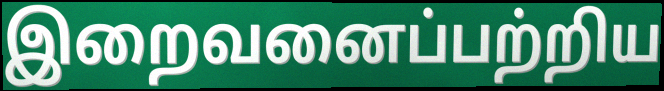
இறைவனைப்பற்றிய